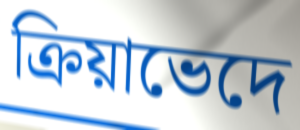
ক্রিয়াভেদে